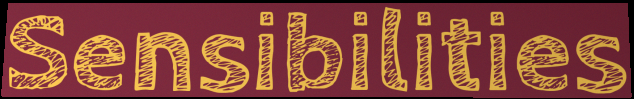
Sensibilities